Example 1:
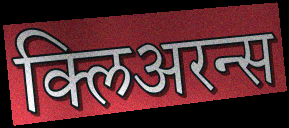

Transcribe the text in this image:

क्लिअरन्स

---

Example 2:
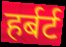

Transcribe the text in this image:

हर्बर्ट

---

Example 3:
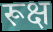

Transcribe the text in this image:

रूक्ष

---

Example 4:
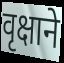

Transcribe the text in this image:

वृक्षाने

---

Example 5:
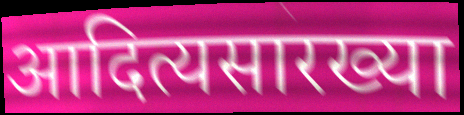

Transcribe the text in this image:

आदित्यसारख्या